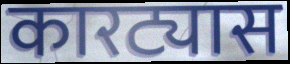
कारट्यास